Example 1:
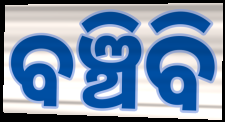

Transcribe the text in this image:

ବଞ୍ଚିବି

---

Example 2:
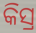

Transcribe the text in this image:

କିସ୍ର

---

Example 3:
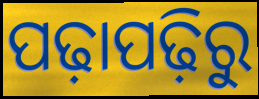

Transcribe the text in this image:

ପଢ଼ାପଢ଼ିରୁ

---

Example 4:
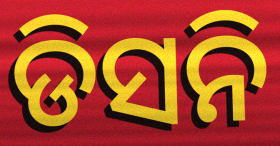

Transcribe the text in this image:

ଡିସନି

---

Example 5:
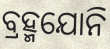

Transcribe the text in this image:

ବ୍ରହ୍ମଯୋନି